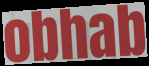
obhab